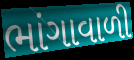
ભાંગાવાળી